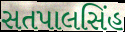
સતપાલસિંહ